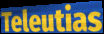
Teleutias